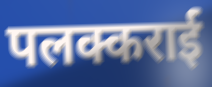
पलक्कराई